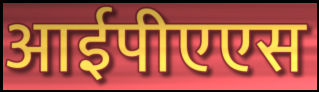
आईपीएएस